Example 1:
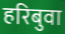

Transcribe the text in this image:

हरिबुवा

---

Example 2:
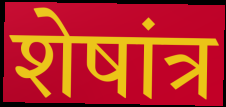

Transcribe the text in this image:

शेषांत्र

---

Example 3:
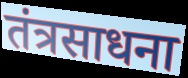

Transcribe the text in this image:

तंत्रसाधना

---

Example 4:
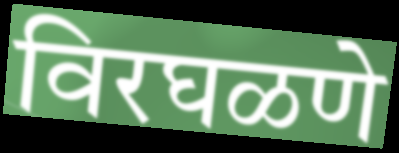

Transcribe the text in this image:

विरघळणे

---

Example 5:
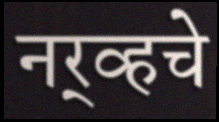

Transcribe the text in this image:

नर्व्हचे